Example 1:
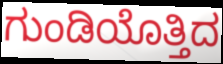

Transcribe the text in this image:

ಗುಂಡಿಯೊತ್ತಿದ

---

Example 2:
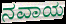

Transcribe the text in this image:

ನವಾಯ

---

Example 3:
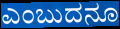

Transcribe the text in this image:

ಎಂಬುದನೂ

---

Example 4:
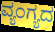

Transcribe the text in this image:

ವ್ಯಂಗ್ಯದ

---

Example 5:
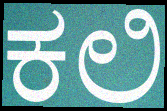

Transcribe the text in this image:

ಕಲಿ